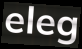
eleg